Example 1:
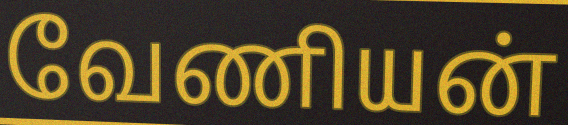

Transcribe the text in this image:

வேணியன்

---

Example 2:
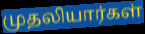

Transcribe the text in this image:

முதலியார்கள்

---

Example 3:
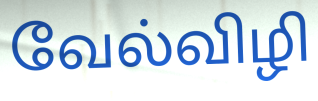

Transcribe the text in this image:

வேல்விழி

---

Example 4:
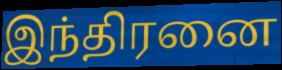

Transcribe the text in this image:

இந்திரனை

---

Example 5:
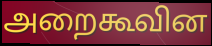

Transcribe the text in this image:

அறைகூவின